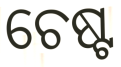
ଚେଷ୍ଟ